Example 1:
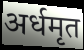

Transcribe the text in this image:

अर्धमृत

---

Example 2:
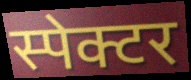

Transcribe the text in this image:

स्पेक्टर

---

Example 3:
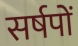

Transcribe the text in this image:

सर्षपों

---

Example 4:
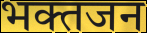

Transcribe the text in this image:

भक्तजन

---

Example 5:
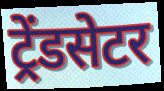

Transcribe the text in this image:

ट्रेंडसेटर